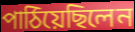
পাঠিয়েছিলেন